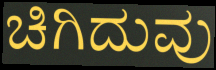
ಚಿಗಿದುವು